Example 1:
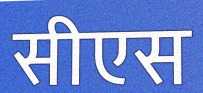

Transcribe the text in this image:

सीएस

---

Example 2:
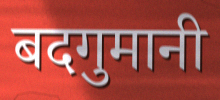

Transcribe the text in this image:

बदगुमानी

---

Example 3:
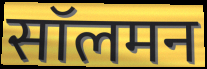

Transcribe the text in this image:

सॉलमन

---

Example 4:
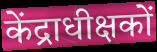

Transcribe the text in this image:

केंद्राधीक्षकों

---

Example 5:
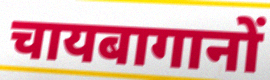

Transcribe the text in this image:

चायबागानों